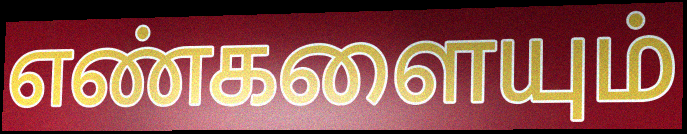
எண்களையும்